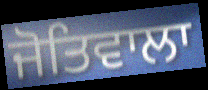
ਜੋਤਿਵਾਲਾ